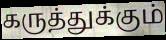
கருத்துக்கும்